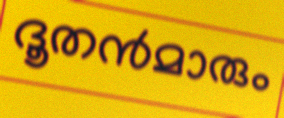
ദൂതൻമാരും